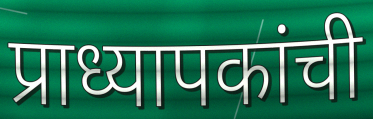
प्राध्यापकांची